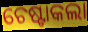
ଚେଷ୍ଟାକଲା